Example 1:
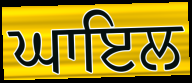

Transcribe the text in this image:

ਘਾਇਲ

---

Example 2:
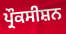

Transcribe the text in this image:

ਪ੍ਰੌਕਸੀਸ਼ਨ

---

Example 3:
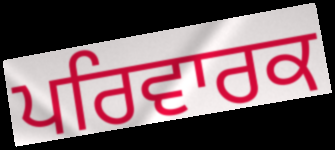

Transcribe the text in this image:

ਪਰਿਵਾਰਕ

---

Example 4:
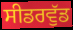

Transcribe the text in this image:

ਸੀਡਰਵੁੱਡ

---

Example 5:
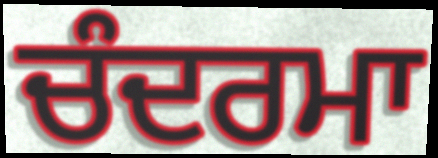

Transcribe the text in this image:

ਚੰਦਰਮਾ